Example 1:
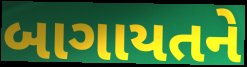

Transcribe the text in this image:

બાગાયતને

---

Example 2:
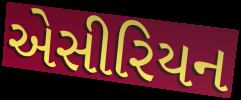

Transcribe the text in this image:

એસીરિયન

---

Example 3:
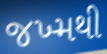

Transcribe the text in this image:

જખ્મથી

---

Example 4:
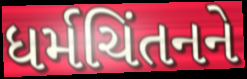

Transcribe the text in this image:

ધર્મચિંતનને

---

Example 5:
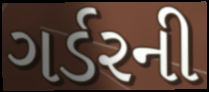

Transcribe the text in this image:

ગર્ડરની